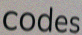
codes